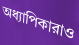
অধ্যাপিকারাও